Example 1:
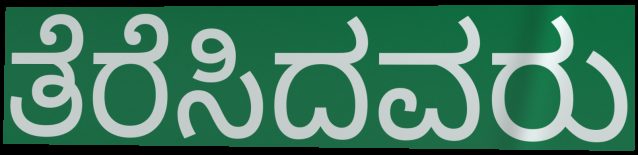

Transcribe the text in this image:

ತೆರೆಸಿದವರು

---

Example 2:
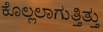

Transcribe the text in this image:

ಕೊಲ್ಲಲಾಗುತ್ತಿತ್ತು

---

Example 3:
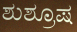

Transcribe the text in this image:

ಶುಶ್ರೂಷ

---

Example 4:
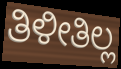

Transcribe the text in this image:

ತಿಳೀತಿಲ್ಲ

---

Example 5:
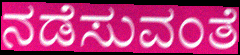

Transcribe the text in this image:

ನಡೆಸುವಂತೆ